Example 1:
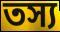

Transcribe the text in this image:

তস্য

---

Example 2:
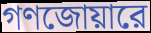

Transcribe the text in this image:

গণজোয়ারে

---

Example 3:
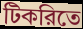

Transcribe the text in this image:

টিকরিতে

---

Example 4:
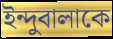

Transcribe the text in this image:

ইন্দুবালাকে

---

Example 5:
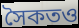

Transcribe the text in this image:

সৈকতও